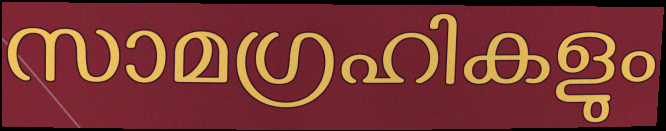
സാമഗ്രഹികളും